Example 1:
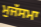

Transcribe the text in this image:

ਮੁਜੱਸਮਾ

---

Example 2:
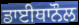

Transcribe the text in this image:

ਡਾਈਥਾਨੌਲ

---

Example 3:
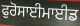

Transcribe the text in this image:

ਫੁਰੋਸਾਈਮਾਈਡ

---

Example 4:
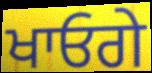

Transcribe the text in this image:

ਖਾਓਗੇ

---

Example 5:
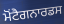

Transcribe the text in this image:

ਮੋਂਟੈਗਨਾਰਡਸ